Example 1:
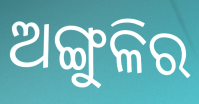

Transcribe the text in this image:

ଅଙ୍ଗୁଳିର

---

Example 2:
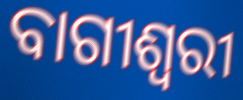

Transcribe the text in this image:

ବାଗୀଶ୍ୱରୀ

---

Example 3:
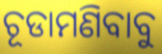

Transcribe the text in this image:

ଚୂଡାମଣିବାବୁ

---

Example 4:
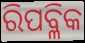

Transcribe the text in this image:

ରିପବ୍ଳିକ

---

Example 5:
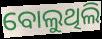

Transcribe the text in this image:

ବୋଲୁଥିଲି